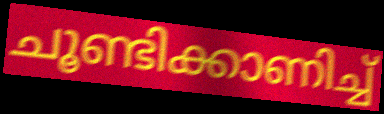
ചൂണ്ടിക്കാണിച്ച്